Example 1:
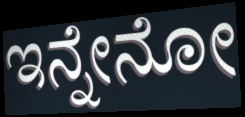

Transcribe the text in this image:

ಇನ್ನೇನೋ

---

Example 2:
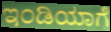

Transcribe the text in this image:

ಇಂಡಿಯಾಗೆ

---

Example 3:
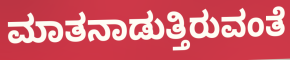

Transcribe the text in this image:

ಮಾತನಾಡುತ್ತಿರುವಂತೆ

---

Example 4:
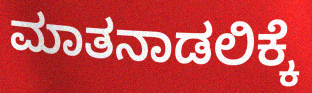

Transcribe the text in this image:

ಮಾತನಾಡಲಿಕ್ಕೆ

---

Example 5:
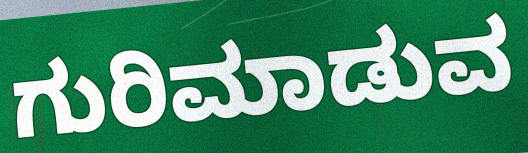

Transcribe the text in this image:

ಗುರಿಮಾಡುವ